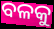
ବଳକୁ